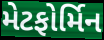
મેટફોર્મિન